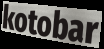
kotobar